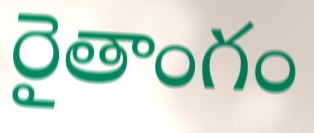
రైతాంగం